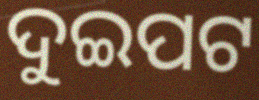
ଦୁଇପଟ